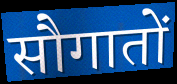
सौगातों